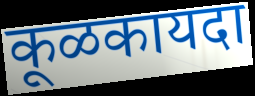
कूळकायदा